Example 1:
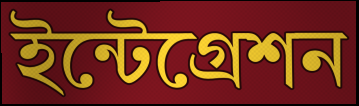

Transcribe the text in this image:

ইন্টেগ্রেশন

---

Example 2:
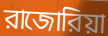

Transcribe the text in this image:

রাজোরিয়া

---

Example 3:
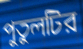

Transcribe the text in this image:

পুতুলটির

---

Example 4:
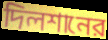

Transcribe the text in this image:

দিলশানের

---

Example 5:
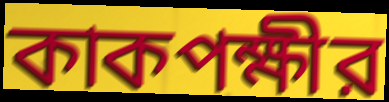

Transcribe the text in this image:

কাকপক্ষীর